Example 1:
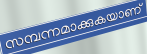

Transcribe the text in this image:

സമ്പന്നമാക്കുകയാണ്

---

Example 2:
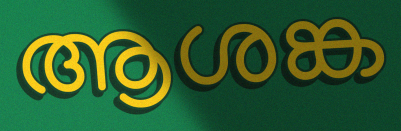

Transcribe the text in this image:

ആശങ്ക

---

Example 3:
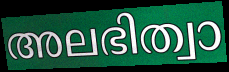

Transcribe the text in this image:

അലഭിത്വാ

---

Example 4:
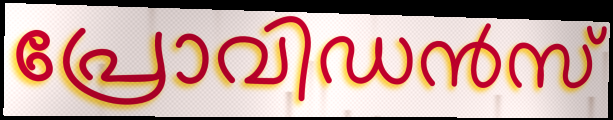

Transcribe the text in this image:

പ്രോവിഡൻസ്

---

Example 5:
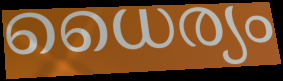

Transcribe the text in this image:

ധൈര്യം